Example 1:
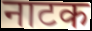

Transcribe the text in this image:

नाटक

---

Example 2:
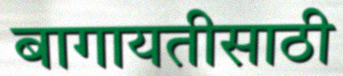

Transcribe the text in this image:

बागायतीसाठी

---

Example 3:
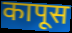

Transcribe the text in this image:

कापूस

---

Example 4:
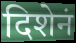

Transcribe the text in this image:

दिशेनं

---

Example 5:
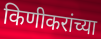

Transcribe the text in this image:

किणीकरांच्या